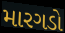
મારગડો